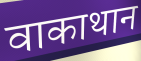
वाकाथान